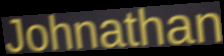
Johnathan